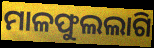
ମାଳଫୁଲଲାଗି